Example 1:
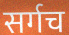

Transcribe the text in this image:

सर्गच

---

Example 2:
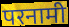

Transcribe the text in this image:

परनामी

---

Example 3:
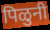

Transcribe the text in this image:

पिळुनी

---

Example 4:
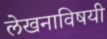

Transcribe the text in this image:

लेखनाविषयी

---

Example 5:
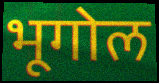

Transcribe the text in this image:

भूगोल